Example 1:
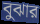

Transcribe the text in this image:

বুঝার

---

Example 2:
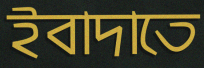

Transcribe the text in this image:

ইবাদাতে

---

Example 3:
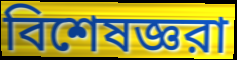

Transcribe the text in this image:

বিশেষজ্ঞরা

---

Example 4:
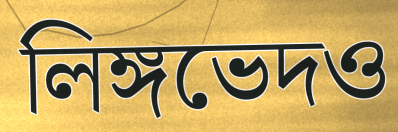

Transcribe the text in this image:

লিঙ্গভেদও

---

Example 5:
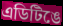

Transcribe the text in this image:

এডিটিঙে